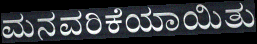
ಮನವರಿಕೆಯಾಯಿತು